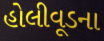
હોલીવૂડના